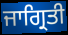
ਜਾਗ੍ਰਿਤੀ